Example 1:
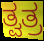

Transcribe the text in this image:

ತ್ವತ್ರ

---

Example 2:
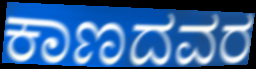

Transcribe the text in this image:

ಕಾಣದವರ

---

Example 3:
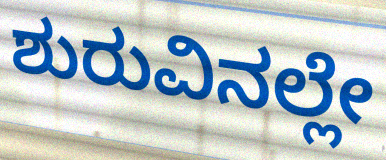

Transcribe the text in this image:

ಶುರುವಿನಲ್ಲೇ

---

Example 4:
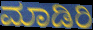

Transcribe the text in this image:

ಮಾಡಿರಿ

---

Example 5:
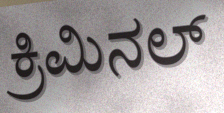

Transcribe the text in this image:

ಕ್ರಿಮಿನಲ್